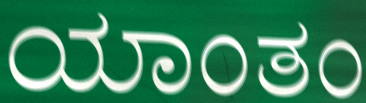
ಯಾಂತಂ